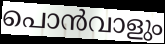
പൊൻവാളും